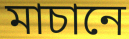
মাচানে